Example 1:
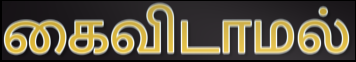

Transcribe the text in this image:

கைவிடாமல்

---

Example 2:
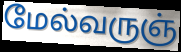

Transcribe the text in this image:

மேல்வருஞ்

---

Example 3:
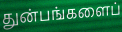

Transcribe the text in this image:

துன்பங்களைப்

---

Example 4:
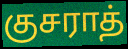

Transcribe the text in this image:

குசராத்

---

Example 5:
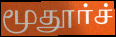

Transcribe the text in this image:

மூதூர்ச்